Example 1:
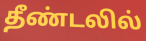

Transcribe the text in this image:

தீண்டலில்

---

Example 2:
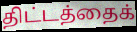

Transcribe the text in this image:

திட்டத்தைக்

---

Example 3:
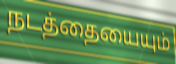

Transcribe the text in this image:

நடத்தையையும்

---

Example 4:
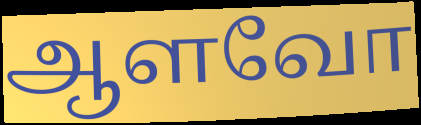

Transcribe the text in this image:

ஆளவோ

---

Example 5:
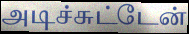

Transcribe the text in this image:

அடிச்சுட்டேன்